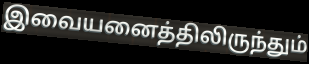
இவையனைத்திலிருந்தும்